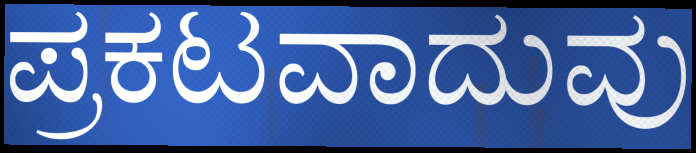
ಪ್ರಕಟವಾದುವು